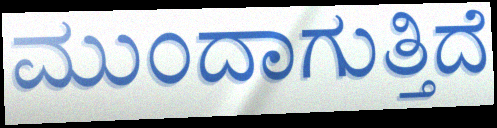
ಮುಂದಾಗುತ್ತಿದೆ